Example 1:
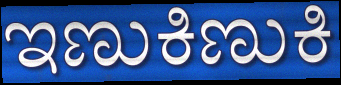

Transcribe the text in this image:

ಇಣುಕಿಣುಕಿ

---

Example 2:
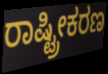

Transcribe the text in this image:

ರಾಷ್ಟ್ರೀಕರಣ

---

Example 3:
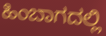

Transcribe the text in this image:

ಹಿಂಬಾಗದಲ್ಲಿ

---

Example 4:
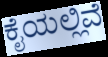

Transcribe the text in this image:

ಕೈಯಲ್ಲಿವೆ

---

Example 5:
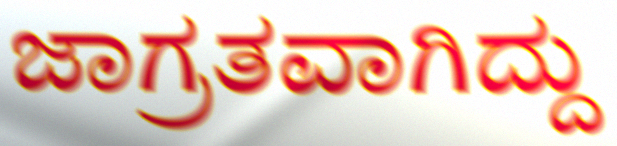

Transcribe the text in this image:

ಜಾಗ್ರತವಾಗಿದ್ದು